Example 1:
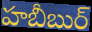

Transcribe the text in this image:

హబీబుర్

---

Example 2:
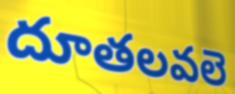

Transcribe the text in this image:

దూతలవలె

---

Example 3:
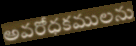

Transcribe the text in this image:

అవరోధకములను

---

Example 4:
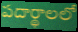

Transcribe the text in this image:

పదార్థాలలో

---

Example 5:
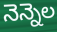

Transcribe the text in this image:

నెన్నెల